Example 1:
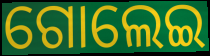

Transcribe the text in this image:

ଗୋଲେଇ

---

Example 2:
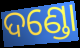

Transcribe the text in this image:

ଦଣ୍ଡୋ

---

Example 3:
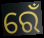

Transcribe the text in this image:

ରେଁ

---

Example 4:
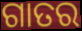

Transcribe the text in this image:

ଗାତର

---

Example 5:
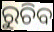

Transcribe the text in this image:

ରୁଚିବ